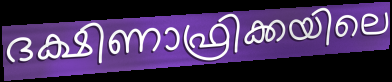
ദക്ഷിണാഫ്രിക്കയിലെ